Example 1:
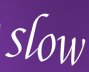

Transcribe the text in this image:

slow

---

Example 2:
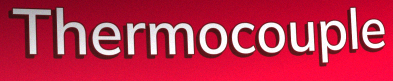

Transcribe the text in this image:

Thermocouple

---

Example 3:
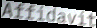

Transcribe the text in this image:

Affidavit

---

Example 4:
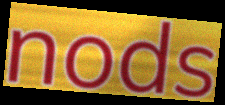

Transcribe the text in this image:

nods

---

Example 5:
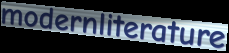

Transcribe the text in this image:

modernliterature